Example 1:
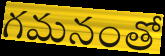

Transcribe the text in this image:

గమనంతో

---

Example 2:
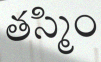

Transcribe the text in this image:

తస్మిం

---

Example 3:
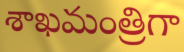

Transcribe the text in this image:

శాఖమంత్రిగా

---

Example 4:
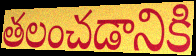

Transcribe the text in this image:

తలంచడానికి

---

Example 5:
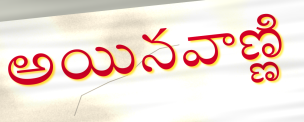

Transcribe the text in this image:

అయినవాణ్ణి